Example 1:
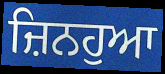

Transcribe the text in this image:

ਜ਼ਿਨਹੁਆ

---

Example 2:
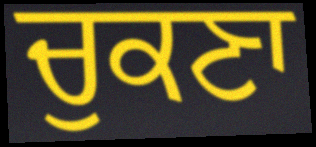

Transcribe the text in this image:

ਚੁਕਣਾ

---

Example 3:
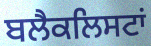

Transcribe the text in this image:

ਬਲੈਕਲਿਸਟਾਂ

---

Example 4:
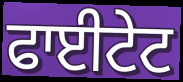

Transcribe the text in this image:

ਫਾਈਟੇਟ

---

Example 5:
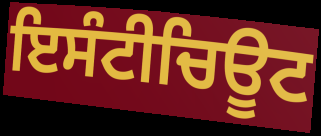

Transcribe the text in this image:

ਇਸੰਟੀਚਿਊਟ